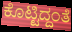
ಕೊಟ್ಟಿದ್ದಂತೆ